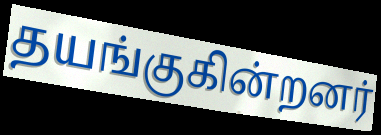
தயங்குகின்றனர்